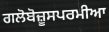
ਗਲੋਬੋਜ਼ੂਸਪਰਮੀਆ